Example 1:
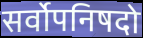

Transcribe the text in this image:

सर्वोपनिषदो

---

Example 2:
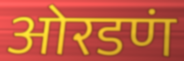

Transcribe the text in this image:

ओरडणं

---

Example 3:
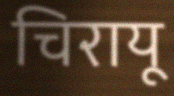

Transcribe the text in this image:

चिरायू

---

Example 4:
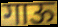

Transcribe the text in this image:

गाऊ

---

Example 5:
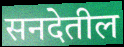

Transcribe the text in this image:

सनदेतील